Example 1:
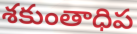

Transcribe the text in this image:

శకుంతాధిప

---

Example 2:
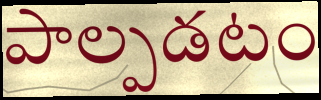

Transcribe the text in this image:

పాల్పడటం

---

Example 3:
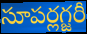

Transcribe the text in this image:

సూపర్లగ్జరీ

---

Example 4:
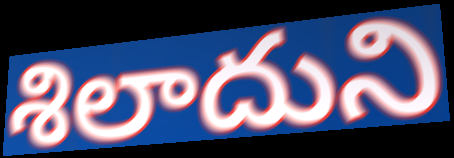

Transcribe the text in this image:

శిలాదుని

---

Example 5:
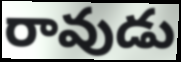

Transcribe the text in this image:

రావుడు